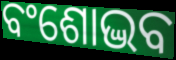
ବଂଶୋଦ୍ଭବ